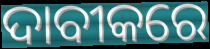
ଦାବୀକରେ